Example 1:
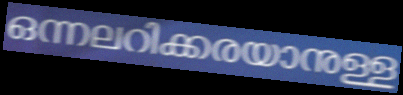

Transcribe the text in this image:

ഒന്നലറിക്കരയാനുള്ള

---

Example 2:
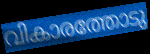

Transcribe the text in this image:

വികാരത്തോടു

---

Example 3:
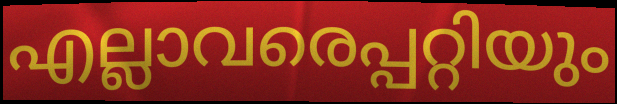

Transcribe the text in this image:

എല്ലാവരെപ്പറ്റിയും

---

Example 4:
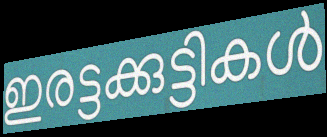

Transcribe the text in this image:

ഇരട്ടക്കുട്ടികൾ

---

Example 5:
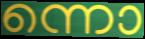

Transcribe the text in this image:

ന്നൊ